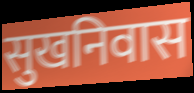
सुखनिवास